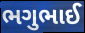
ભગુભાઈ